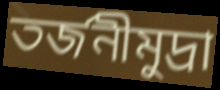
তর্জনীমুদ্রা